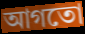
আগতো